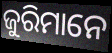
ଜୁରିମାନେ